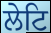
ਲੇਟਿ